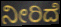
ನೀರಿದೆ